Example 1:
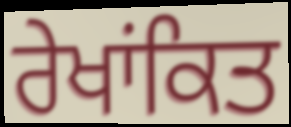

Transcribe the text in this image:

ਰੇਖਾਂਕਿਤ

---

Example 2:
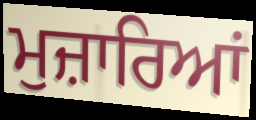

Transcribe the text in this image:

ਮੁਜ਼ਾਰਿਆਂ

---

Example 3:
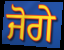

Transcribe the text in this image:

ਜੋਗੇ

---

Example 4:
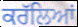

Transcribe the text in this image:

ਕਰੱਲਿਆਂ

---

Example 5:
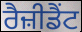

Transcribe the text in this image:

ਰੈਜ਼ੀਡੈਂਟ